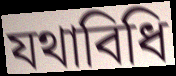
যথাবিধি